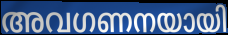
അവഗണനയായി